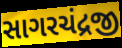
સાગરચંદ્રજી